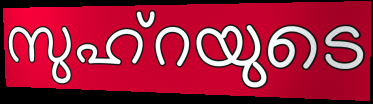
സുഹ്റയുടെ